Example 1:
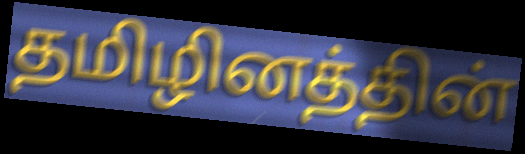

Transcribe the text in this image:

தமிழினத்தின்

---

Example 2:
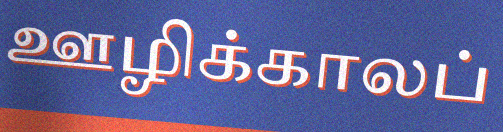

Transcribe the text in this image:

ஊழிக்காலப்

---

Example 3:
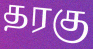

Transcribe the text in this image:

தரகு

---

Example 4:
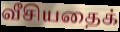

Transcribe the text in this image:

வீசியதைக்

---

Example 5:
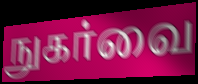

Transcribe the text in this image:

நுகர்வை